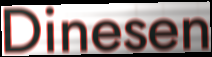
Dinesen